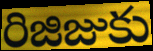
రిజిజుకు